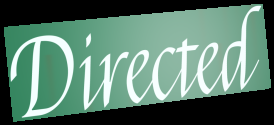
Directed